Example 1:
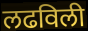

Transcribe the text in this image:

लढविली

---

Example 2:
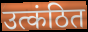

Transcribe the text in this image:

उत्कंठित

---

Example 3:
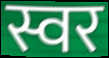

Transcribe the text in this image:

स्वर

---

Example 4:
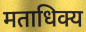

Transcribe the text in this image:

मताधिक्य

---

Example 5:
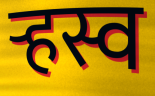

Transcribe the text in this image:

ऱ्हस्व